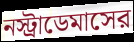
নস্ট্রাডেমাসের